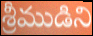
శ్రీముడిని